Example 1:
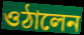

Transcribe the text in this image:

ওঠালেন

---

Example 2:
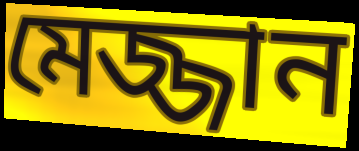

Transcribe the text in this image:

মেজ্জান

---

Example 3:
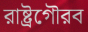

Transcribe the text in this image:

রাষ্ট্রগৌরব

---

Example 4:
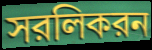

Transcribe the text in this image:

সরলিকরন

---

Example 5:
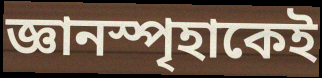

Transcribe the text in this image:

জ্ঞানস্পৃহাকেই